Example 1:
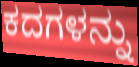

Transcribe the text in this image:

ಕದಗಳನ್ನು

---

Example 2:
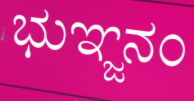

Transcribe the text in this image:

ಭುಞ್ಜನಂ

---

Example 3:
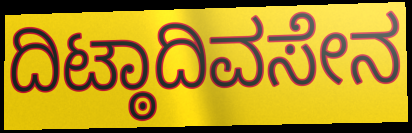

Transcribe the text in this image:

ದಿಟ್ಠಾದಿವಸೇನ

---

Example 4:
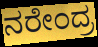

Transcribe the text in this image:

ನರೇಂದ್ರ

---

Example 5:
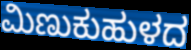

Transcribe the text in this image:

ಮಿಣುಕುಹುಳದ